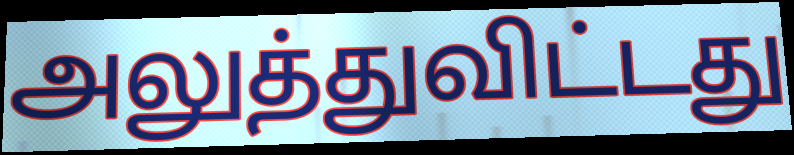
அலுத்துவிட்டது